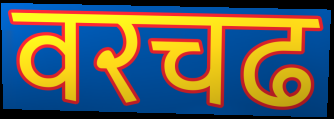
वरचढ